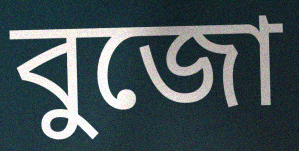
বুজো